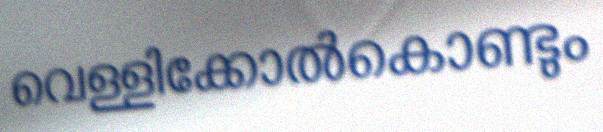
വെള്ളിക്കോൽകൊണ്ടും